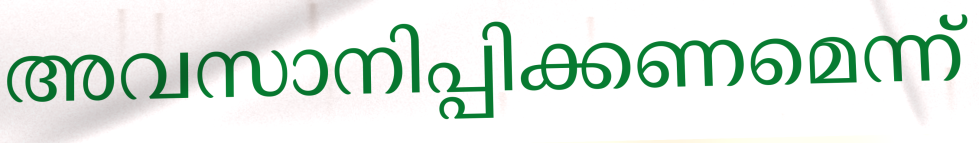
അവസാനിപ്പിക്കണമെന്ന്